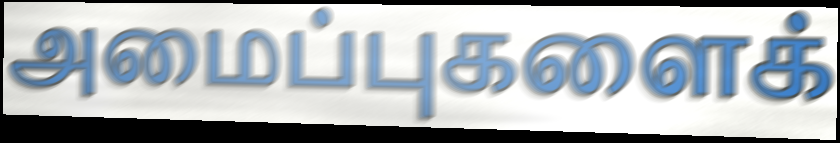
அமைப்புகளைக்